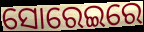
ସୋରେଇରେ